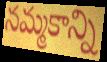
నమ్మకాన్ని